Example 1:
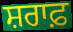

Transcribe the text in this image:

ਸ਼ਰਾਫ਼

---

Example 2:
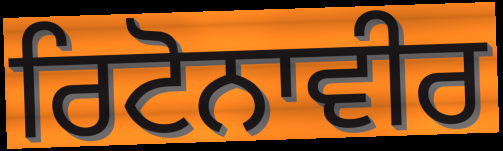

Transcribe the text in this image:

ਰਿਟੋਨਾਵੀਰ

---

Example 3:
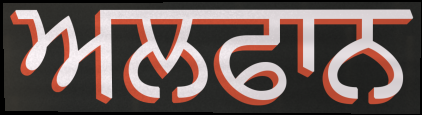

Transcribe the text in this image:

ਅਲਫਾਨ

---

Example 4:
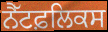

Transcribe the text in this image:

ਨੈੱਟਫ਼ਲਿਕਸ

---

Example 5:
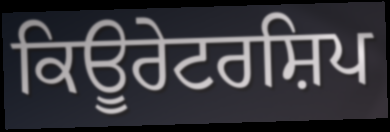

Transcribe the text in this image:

ਕਿਊਰੇਟਰਸ਼ਿਪ